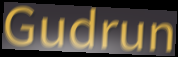
Gudrun